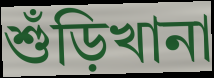
শুঁড়িখানা